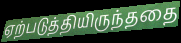
ஏற்படுத்தியிருந்ததை